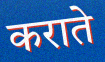
कराते